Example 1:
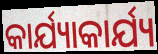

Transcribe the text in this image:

କାର୍ଯ୍ୟାକାର୍ଯ୍ୟ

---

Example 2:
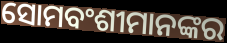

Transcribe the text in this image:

ସୋମବଂଶୀମାନଙ୍କର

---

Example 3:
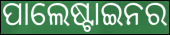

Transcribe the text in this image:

ପାଲେଷ୍ଟାଇନର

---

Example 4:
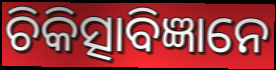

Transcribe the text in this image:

ଚିକିତ୍ସାବିଜ୍ଞାନେ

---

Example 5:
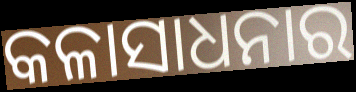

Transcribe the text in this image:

କଳାସାଧନାର